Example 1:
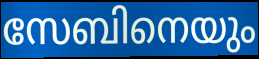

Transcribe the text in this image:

സേബിനെയും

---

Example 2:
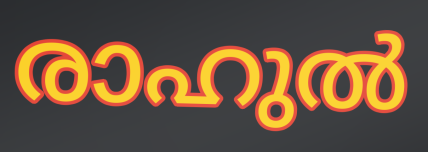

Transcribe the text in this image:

രാഹുൽ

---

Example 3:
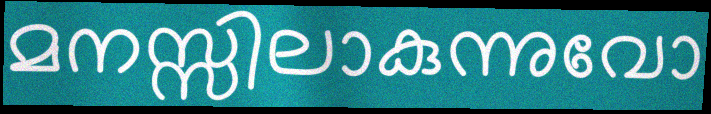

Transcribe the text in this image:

മനസ്സിലാകുന്നുവോ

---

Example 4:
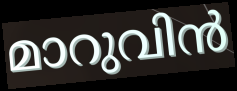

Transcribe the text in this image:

മാറുവിൻ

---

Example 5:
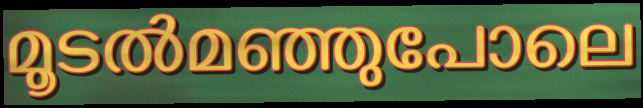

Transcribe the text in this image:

മൂടൽമഞ്ഞുപോലെ